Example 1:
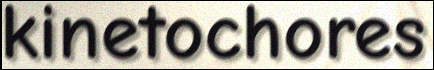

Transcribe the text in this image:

kinetochores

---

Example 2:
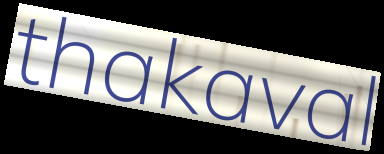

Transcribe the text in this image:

thakaval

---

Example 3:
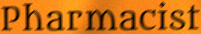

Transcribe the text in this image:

Pharmacist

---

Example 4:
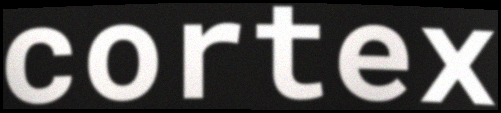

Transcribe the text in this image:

cortex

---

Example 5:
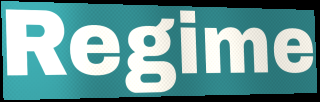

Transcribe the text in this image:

Regime